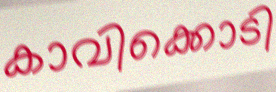
കാവിക്കൊടി